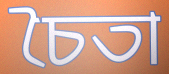
চৈতা